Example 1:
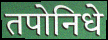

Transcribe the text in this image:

तपोनिधे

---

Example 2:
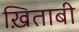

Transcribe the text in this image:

ख़िताबी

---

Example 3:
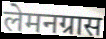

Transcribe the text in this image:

लेमनग्रास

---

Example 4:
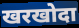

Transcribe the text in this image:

खरखोदा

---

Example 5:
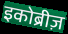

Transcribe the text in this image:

इकोब्रीज़